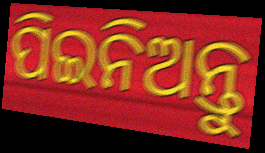
ପିଇନିଅନ୍ତୁ